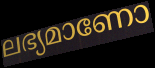
ലഭ്യമാണോ